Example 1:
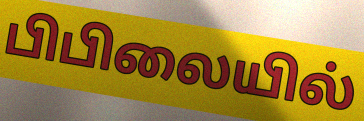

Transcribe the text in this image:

பிபிலையில்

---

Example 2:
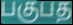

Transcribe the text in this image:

பகுபத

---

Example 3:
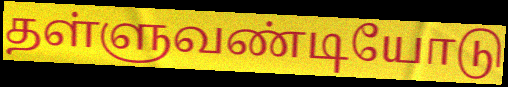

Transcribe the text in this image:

தள்ளுவண்டியோடு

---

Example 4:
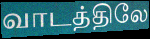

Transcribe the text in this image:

வாடத்திலே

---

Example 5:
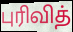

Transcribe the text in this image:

புரிவித்